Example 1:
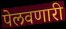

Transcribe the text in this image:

पेलवणारी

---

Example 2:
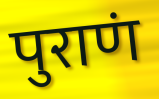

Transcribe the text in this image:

पुराणं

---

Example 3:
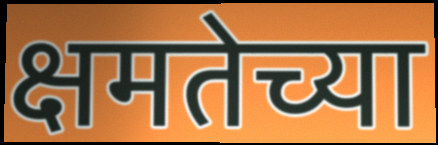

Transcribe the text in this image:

क्षमतेच्या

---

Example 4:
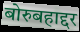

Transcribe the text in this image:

बोरुबहाद्दर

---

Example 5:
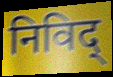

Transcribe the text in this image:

निविद्